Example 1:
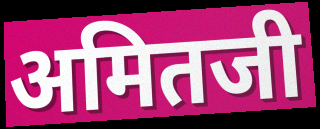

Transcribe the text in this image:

अमितजी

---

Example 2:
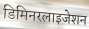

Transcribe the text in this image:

डिमिनरलाइजेशन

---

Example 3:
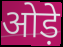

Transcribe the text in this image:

ओड़े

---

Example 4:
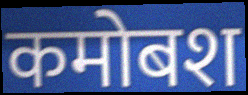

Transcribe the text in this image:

कमोबश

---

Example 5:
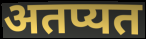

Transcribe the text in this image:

अतप्यत